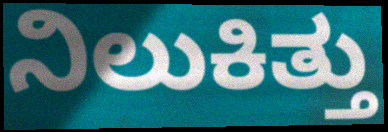
ನಿಲುಕಿತ್ತು